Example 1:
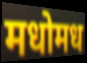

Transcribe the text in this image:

मधोमध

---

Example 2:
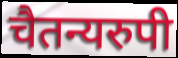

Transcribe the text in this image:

चैतन्यरुपी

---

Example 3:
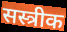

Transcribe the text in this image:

सस्त्रीक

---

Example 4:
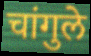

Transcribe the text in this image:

चांगुले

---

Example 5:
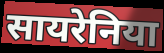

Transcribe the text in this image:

सायरेनिया